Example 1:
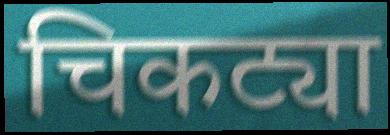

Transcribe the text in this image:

चिकट्या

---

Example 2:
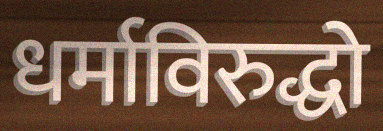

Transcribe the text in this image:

धर्माविरुद्धो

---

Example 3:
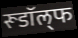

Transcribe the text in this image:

रूडॉल्फ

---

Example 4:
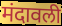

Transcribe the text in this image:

मंदावली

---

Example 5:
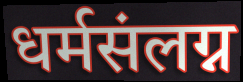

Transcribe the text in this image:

धर्मसंलग्न